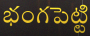
భంగపెట్టి